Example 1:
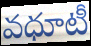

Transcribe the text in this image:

వధూటీ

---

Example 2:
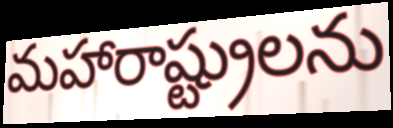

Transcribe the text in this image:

మహారాష్ట్రులను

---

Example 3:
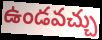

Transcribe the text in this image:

ఉండవచ్చు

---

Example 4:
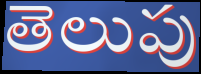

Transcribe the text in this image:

తెలుపు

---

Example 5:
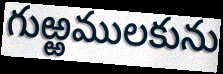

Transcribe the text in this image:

గుఱ్ఱములకును